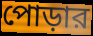
পোড়ার